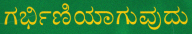
ಗರ್ಭಿಣಿಯಾಗುವುದು